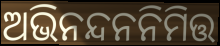
ଅଭିନନ୍ଦନନିମିତ୍ତ